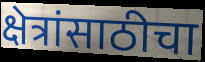
क्षेत्रांसाठीचा